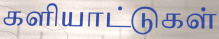
களியாட்டுகள்